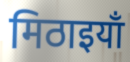
मिठाइयाँ